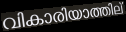
വികാരിയാത്തില്